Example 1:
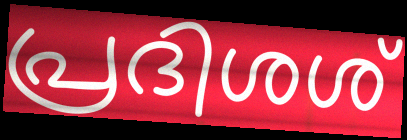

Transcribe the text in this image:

പ്രദിശശ്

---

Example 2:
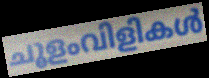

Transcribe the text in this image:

ചൂളംവിളികൾ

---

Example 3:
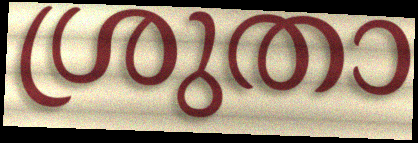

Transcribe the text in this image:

ശ്രുതാ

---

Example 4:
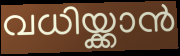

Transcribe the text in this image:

വധിയ്ക്കാൻ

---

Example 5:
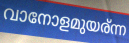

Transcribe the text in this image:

വാനോളമുയര്ന്ന